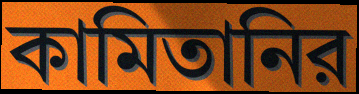
কামিতানির